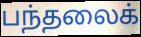
பந்தலைக்